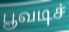
பூவடிச்